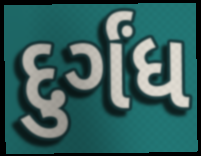
દુર્ગંધ